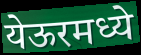
येऊरमध्ये